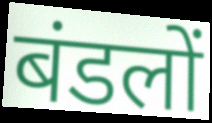
बंडलों